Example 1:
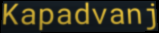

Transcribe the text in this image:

Kapadvanj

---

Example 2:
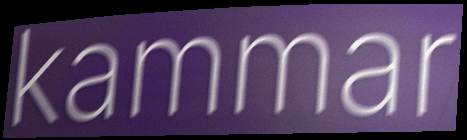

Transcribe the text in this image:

kammar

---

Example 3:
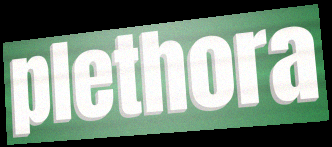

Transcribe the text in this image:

plethora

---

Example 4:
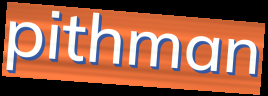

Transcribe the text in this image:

pithman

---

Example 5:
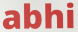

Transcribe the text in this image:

abhi